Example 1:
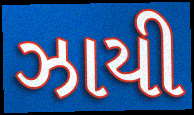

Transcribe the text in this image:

ઝાયી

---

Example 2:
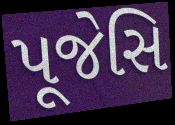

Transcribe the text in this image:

પૂજેસિ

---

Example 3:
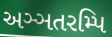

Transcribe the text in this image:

અઞ્ઞતરમ્પિ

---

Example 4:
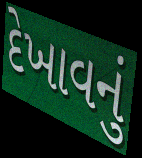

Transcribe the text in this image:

દેખાવનું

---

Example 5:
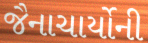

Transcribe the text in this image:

જૈનાચાર્યોની